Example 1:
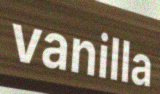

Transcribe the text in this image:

vanilla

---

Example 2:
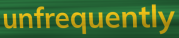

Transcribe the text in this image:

unfrequently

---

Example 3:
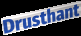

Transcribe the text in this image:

Drusthant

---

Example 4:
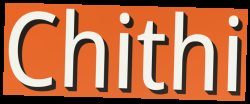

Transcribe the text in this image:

Chithi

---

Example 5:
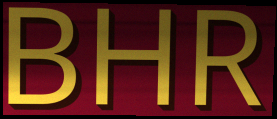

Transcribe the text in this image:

BHR